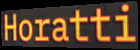
Horatti